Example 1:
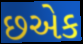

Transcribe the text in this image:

છએક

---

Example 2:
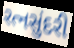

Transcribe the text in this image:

રત્નસુંદરી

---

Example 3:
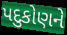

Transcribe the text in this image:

પદુકોણને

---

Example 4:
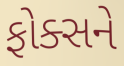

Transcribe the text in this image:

ફોક્સને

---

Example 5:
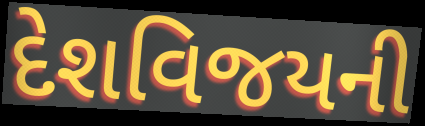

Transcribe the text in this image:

દેશવિજયની